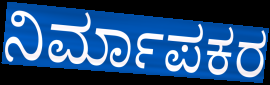
ನಿರ್ಮಾಪಕರ